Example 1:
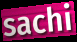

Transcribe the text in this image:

sachi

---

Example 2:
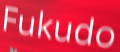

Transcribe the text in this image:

Fukudo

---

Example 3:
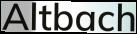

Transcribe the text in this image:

Altbach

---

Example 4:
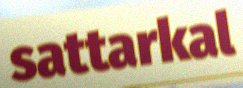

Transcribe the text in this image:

sattarkal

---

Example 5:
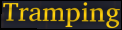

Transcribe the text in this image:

Tramping